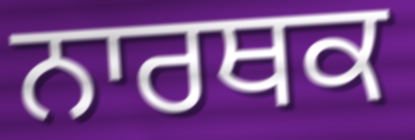
ਨਾਰਥਕ